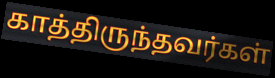
காத்திருந்தவர்கள்